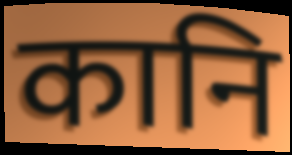
कानि